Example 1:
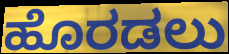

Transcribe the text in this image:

ಹೊರಡಲು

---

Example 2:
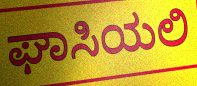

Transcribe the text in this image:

ಘಾಸಿಯಲಿ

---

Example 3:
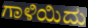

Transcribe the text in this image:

ಗಾಳಿಯಿದು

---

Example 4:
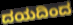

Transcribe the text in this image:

ದಯದಿಂದ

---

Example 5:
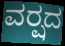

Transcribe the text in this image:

ವರ್‍ಷದ